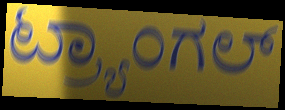
ಟ್ರ್ಯಾಂಗಲ್